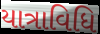
યાત્રાવિધિ